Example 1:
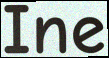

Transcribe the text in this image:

Ine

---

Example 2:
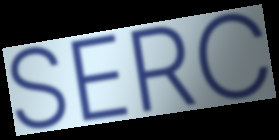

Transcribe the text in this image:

SERC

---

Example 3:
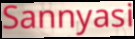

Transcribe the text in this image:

Sannyasi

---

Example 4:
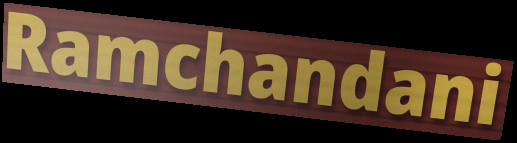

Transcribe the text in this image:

Ramchandani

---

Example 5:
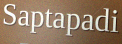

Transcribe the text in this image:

Saptapadi